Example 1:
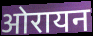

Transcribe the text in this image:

ओरायन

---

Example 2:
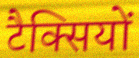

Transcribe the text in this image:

टैक्सियों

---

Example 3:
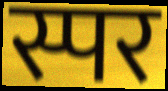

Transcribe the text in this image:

स्पर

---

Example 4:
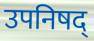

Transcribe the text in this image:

उपनिषद्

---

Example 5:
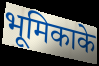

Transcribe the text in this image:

भूमिकाके